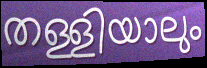
തള്ളിയാലും